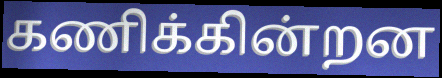
கணிக்கின்றன